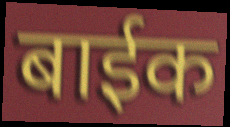
बाईक